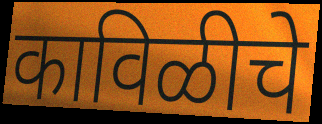
काविळीचे